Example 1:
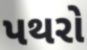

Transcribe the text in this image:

પથરો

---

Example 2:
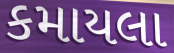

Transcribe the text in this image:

કમાયલા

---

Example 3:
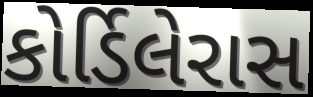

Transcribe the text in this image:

કોર્ડિલેરાસ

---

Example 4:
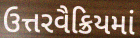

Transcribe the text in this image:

ઉત્તરવૈક્રિયમાં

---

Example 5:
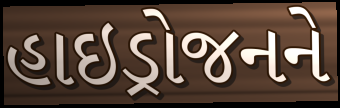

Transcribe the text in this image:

હાઇડ્રોજનને